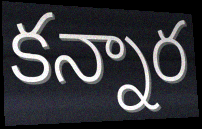
కన్నార